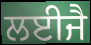
ਲਈਜੈ